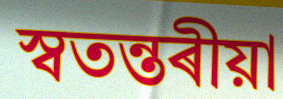
স্বতন্তৰীয়া